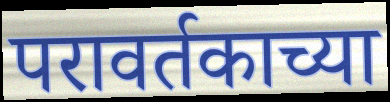
परावर्तकाच्या